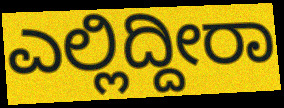
ಎಲ್ಲಿದ್ದೀರಾ